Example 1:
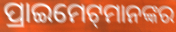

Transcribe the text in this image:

ପ୍ରାଇମେଟ୍‌ମାନଙ୍କର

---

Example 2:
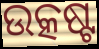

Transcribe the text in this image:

ଉତ୍କଷ୍ଟ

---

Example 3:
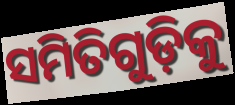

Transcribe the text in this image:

ସମିତିଗୁଡ଼ିକୁ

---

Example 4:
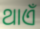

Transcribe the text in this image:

ଥାଏଁ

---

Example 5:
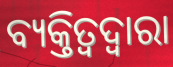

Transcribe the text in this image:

ବ୍ୟକ୍ତିତ୍ୱଦ୍ୱାରା